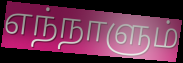
எந்நாளும்